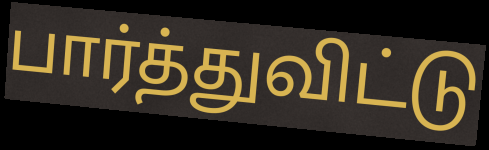
பார்த்துவிட்டு